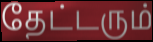
தேட்டரும்